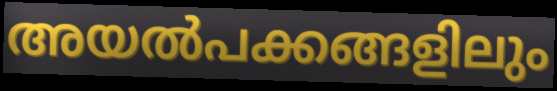
അയൽപക്കങ്ങളിലും